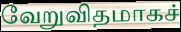
வேறுவிதமாகச்